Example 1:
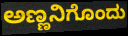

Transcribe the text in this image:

ಅಣ್ಣನಿಗೊಂದು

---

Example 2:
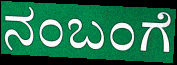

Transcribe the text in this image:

ನಂಬಂಗೆ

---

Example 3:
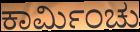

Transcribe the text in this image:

ಕಾರ್ಮಿಂಚು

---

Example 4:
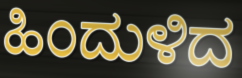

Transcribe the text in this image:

ಹಿಂದುಳಿದ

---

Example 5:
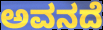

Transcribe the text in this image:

ಅವನದೆ